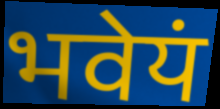
भवेयं